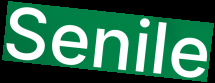
Senile